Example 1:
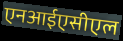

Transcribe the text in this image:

एनआईएसीएल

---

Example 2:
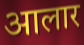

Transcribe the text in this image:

आलार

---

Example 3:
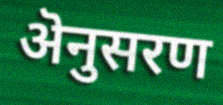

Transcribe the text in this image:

ऄनुसरण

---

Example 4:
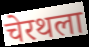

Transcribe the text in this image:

चेरथला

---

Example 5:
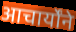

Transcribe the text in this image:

आचार्योंने